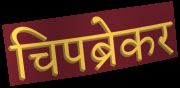
चिपब्रेकर